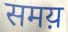
समय़